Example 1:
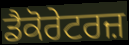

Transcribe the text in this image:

ਡੈਕੋਰੇਟਰਜ਼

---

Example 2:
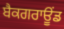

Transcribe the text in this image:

ਬੈਕਗਰਾਊਂਡ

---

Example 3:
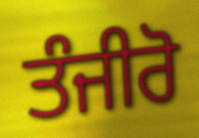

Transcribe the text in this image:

ਤੰਜੀਰੋ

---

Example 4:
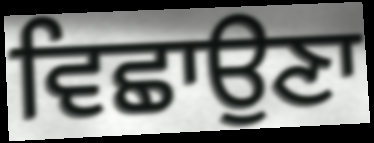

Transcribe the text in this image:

ਵਿਛਾਉਣਾ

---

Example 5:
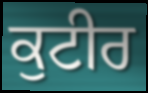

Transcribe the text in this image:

ਕੁਟੀਰ